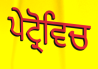
ਪੇਟ੍ਰੋਵਿਚ